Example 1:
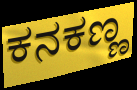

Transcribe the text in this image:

ಕನಕಣ್ಣ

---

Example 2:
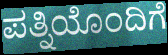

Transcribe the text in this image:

ಪತ್ನಿಯೊಂದಿಗೆ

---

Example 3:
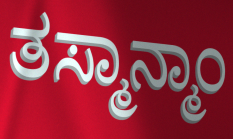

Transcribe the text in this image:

ತಸ್ಮಾನ್ಮಾಂ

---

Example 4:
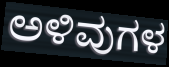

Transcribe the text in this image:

ಅಳಿವುಗಳ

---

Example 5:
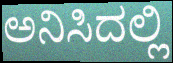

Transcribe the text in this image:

ಅನಿಸಿದಲ್ಲಿ